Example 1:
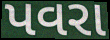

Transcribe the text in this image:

પવરા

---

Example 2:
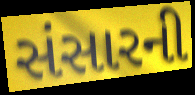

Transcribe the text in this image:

સંસારની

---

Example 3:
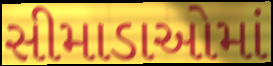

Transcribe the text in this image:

સીમાડાઓમાં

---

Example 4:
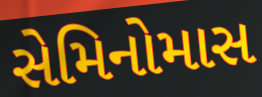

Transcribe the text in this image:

સેમિનોમાસ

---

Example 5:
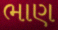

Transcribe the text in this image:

ભાણ